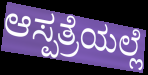
ಆಸ್ಪತ್ರೆಯಲ್ಲೆ